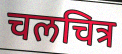
चलचित्र